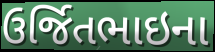
ઉર્જિતભાઇના